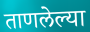
ताणलेल्या